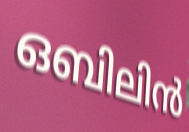
ഒബിലിൻ